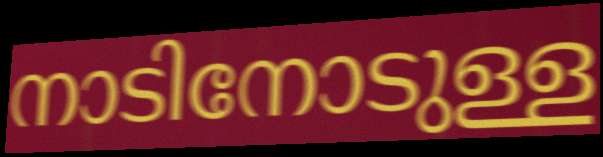
നാടിനോടുള്ള